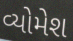
વ્યોમેશ